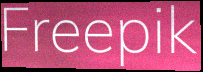
Freepik